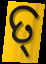
ତ୍